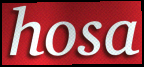
hosa